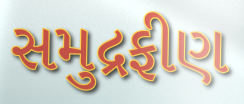
સમુદ્રફીણ